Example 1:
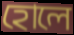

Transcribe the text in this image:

হোলে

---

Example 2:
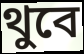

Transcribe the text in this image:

থুবে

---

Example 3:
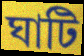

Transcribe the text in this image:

ঘাটি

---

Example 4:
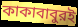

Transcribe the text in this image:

কাকাবাবুরই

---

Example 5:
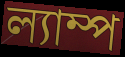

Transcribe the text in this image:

ল্যাম্প